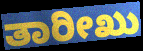
ತಾರೀಖು